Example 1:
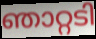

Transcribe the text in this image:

ഞാറ്റടി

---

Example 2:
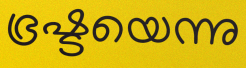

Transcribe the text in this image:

ഭ്രഷ്ടയെന്നു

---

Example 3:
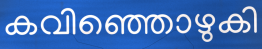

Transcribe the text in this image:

കവിഞ്ഞൊഴുകി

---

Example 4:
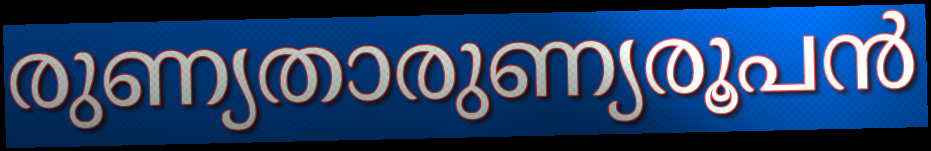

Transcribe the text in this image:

രുണ്യതാരുണ്യരൂപൻ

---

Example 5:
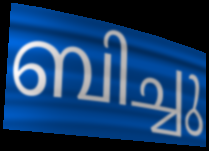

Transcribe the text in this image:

ബിച്ചു